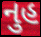
નુહ